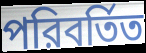
পরিবর্তিত